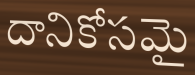
దానికోసమై